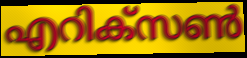
എറിക്സൺ